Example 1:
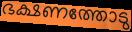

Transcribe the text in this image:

ഭക്ഷണത്തോടു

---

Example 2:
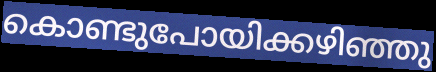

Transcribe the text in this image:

കൊണ്ടുപോയിക്കഴിഞ്ഞു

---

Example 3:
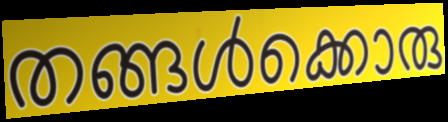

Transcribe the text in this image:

തങ്ങൾക്കൊരു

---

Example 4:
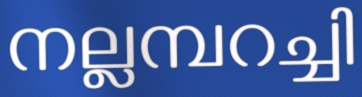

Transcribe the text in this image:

നല്ലമ്പറച്ചി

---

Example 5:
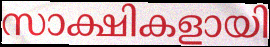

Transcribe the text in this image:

സാക്ഷികളായി